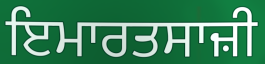
ਇਮਾਰਤਸਾਜ਼ੀ